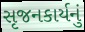
સૃજનકાર્યનું